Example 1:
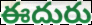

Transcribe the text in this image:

ఈదురు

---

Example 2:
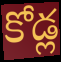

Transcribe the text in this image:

కోడ్ల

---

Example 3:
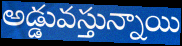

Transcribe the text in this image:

అడ్డువస్తున్నాయి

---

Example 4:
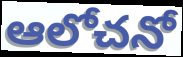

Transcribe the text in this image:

ఆలోచనో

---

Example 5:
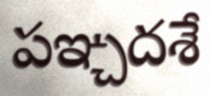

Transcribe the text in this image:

పఞ్చదశే